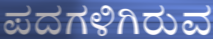
ಪದಗಳಿಗಿರುವ